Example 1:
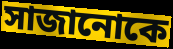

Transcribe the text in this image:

সাজানোকে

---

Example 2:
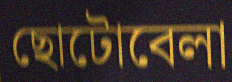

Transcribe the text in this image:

ছোটোবেলা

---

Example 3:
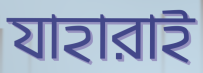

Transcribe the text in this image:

যাহারাই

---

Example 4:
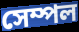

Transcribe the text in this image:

সেম্পল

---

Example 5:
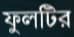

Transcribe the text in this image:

ফুলটির